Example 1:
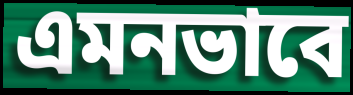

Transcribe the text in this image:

এমনভাবে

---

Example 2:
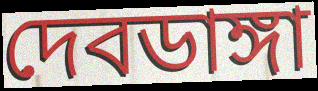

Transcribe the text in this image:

দেবডাঙ্গা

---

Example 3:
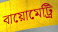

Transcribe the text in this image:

বায়োমেট্রি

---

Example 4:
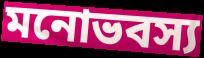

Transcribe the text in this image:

মনোভবস্য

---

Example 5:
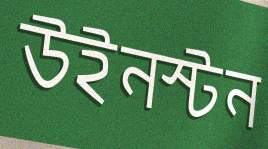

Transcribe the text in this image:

উইনস্টন